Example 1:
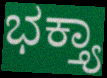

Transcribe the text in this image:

ಭಕ್ತ್ಯಾ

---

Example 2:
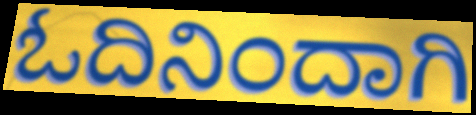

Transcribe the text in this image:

ಓದಿನಿಂದಾಗಿ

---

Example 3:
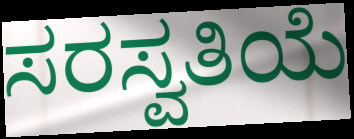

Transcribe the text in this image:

ಸರಸ್ವತಿಯೆ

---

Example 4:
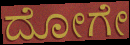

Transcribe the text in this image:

ದೋಗೇ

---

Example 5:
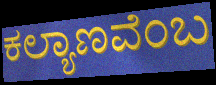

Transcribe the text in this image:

ಕಲ್ಯಾಣವೆಂಬ